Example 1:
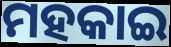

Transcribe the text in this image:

ମହକାଇ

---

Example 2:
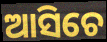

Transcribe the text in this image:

ଆସିଚେ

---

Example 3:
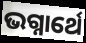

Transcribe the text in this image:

ଭଗ୍ନାର୍ଥେ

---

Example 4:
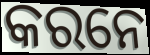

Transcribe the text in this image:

କରନେ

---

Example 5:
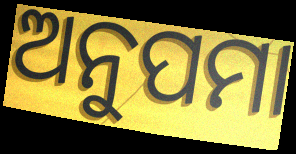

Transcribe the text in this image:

ଅନୁପମା